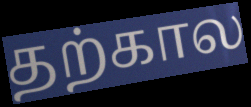
தற்கால